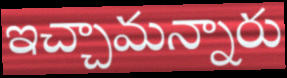
ఇచ్చామన్నారు